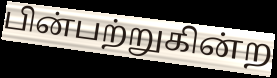
பின்பற்றுகின்ற